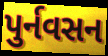
પુર્નવસન